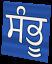
ਸੰਭੂ